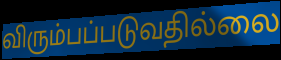
விரும்பப்படுவதில்லை